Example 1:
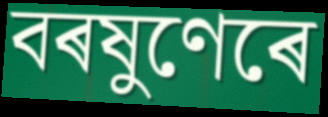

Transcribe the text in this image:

বৰষুণেৰে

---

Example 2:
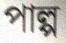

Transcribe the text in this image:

পাল্প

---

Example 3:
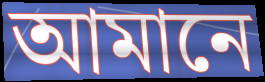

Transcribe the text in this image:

আমানে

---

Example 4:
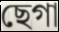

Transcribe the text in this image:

ছেগা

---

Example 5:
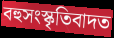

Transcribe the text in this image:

বহুসংস্কৃতিবাদত